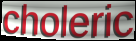
choleric